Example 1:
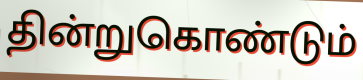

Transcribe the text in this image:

தின்றுகொண்டும்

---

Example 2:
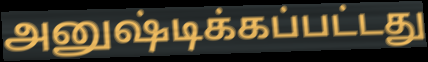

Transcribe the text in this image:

அனுஷ்டிக்கப்பட்டது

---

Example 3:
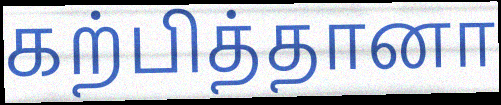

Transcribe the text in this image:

கற்பித்தானா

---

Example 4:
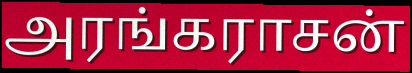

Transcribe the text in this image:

அரங்கராசன்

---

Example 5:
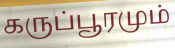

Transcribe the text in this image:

கருப்பூரமும்